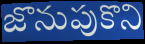
జొనుపుకొని